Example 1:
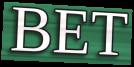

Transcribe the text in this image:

BET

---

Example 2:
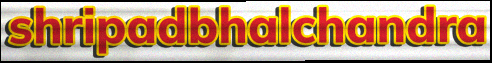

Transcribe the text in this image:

shripadbhalchandra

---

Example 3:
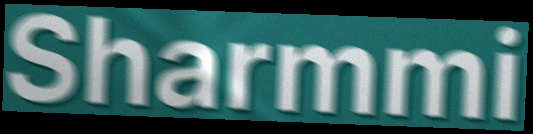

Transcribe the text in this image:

Sharmmi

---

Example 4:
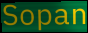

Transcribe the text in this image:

Sopan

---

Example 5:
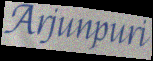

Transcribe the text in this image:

Arjunpuri